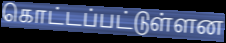
கொட்டப்பட்டுள்ளன